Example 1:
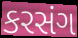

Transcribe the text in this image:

કરસંગ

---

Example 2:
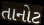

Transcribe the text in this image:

તાનોટ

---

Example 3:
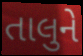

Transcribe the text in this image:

તાલુને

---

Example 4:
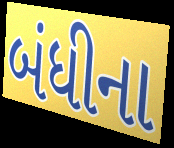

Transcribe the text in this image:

બંધીના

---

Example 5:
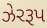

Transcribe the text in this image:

ઝેરરૂપ